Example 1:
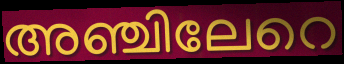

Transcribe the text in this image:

അഞ്ചിലേറെ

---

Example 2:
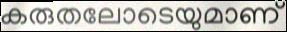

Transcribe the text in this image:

കരുതലോടെയുമാണ്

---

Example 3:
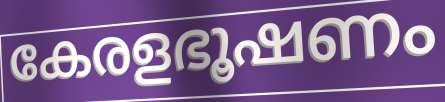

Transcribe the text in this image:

കേരളഭൂഷണം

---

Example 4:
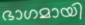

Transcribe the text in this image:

ഭാഗമായി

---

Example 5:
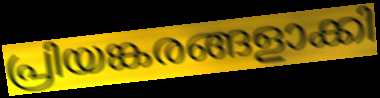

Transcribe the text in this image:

പ്രിയങ്കരങ്ങളാക്കി